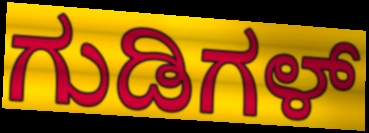
ಗುಡಿಗಳ್